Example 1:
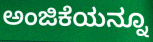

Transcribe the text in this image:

ಅಂಜಿಕೆಯನ್ನೂ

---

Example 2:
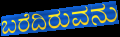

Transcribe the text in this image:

ಬರೆದಿರುವನು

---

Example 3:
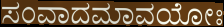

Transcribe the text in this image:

ಸಂವಾದಮಾವಯೋಃ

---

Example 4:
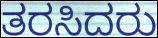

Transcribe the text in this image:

ತರಸಿದರು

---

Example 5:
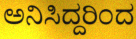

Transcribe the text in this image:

ಅನಿಸಿದ್ದರಿಂದ